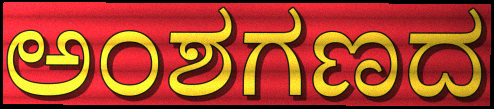
ಅಂಶಗಣದ